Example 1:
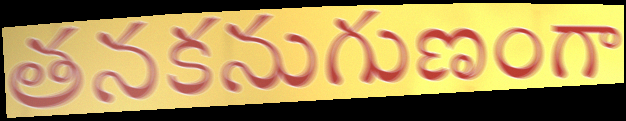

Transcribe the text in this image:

తనకనుగుణంగా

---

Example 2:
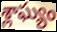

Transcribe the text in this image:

శ్లాఘ్యం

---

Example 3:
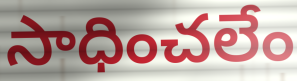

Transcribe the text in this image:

సాధించలేం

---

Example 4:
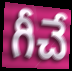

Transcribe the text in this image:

గీచే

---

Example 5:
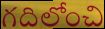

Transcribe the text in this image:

గదిలోంచి